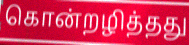
கொன்றழித்தது